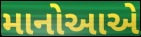
માનોઆએ